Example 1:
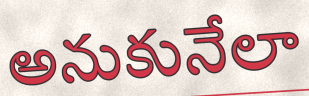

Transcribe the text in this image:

అనుకునేలా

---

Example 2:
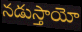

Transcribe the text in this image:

నడుస్తాయో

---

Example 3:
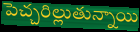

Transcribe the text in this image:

పెచ్చరిల్లుతున్నాయి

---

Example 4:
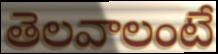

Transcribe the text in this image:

తెలవాలంటే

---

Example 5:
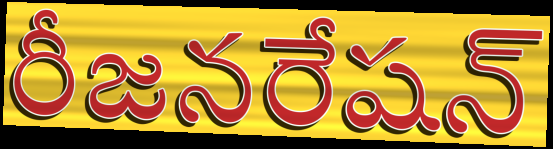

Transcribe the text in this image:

రీజనరేషన్